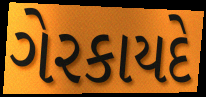
ગેરકાયદે